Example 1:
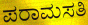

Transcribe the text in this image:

ಪರಾಮಸತಿ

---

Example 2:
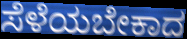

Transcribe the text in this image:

ಸೆಳೆಯಬೇಕಾದ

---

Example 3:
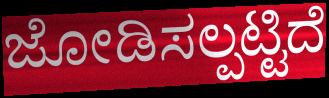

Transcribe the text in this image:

ಜೋಡಿಸಲ್ಪಟ್ಟಿದೆ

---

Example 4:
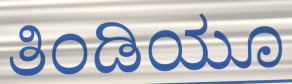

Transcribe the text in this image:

ತಿಂಡಿಯೂ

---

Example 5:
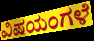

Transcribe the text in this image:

ವಿಷಯಂಗಳೆ